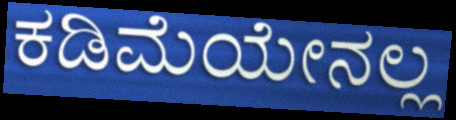
ಕಡಿಮೆಯೇನಲ್ಲ